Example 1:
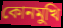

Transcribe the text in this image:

কোনমুখি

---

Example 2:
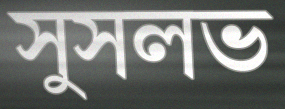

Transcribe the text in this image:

সুসলভ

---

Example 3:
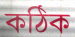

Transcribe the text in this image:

কঠিক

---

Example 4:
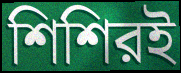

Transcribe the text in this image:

শিশিরই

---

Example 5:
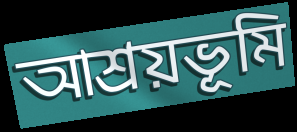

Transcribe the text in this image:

আশ্রয়ভূমি